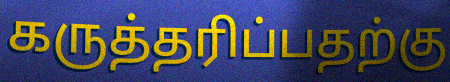
கருத்தரிப்பதற்கு